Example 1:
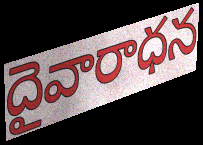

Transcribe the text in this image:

దైవారాధన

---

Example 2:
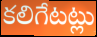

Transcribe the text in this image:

కలిగేటట్లు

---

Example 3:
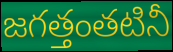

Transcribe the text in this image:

జగత్తంతటినీ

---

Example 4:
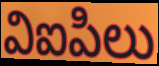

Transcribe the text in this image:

విఐపిలు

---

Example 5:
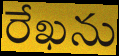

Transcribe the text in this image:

రేఖను